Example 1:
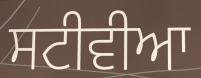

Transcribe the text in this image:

ਸਟੀਵੀਆ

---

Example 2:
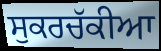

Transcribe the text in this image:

ਸੁਕਰਚੱਕੀਆ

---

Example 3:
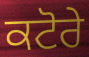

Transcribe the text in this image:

ਕਟੋਰੇ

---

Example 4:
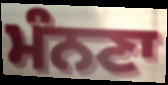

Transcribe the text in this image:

ਮੰਨਣਾ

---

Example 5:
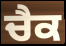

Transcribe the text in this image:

ਚੈਕ